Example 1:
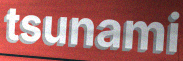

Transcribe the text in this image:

tsunami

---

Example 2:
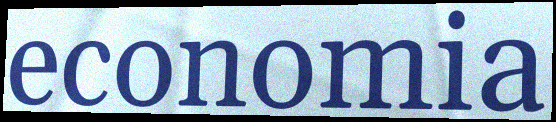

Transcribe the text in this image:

economia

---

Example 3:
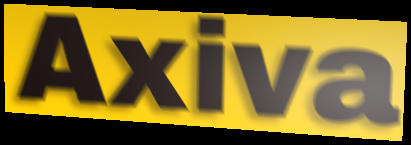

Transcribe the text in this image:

Axiva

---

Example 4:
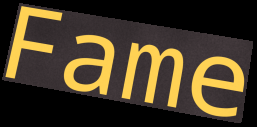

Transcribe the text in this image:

Fame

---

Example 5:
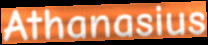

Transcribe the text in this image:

Athanasius